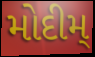
મોદીમ્